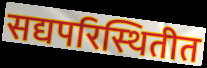
सद्यपरिस्थितीत